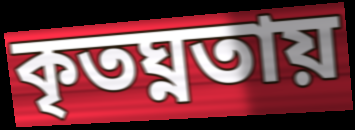
কৃতঘ্নতায়